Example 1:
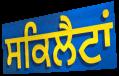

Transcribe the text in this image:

ਸਕਿਲੈਟਾਂ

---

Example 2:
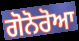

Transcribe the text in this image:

ਗੋਨੋਰੋਆ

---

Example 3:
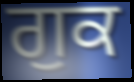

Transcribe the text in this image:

ਗੁਕ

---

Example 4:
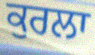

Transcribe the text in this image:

ਕੁਰਲਾ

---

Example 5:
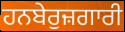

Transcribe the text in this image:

ਹਨਬੇਰੁਜ਼ਗਾਰੀ